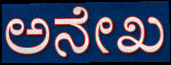
ಅನೇಖ